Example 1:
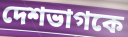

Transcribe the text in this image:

দেশভাগকে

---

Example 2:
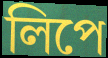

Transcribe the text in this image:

লিপে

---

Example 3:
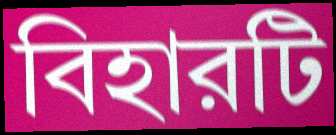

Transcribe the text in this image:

বিহারটি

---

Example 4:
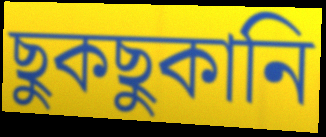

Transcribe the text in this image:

ছুকছুকানি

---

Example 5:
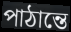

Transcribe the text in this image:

পাঠান্তে